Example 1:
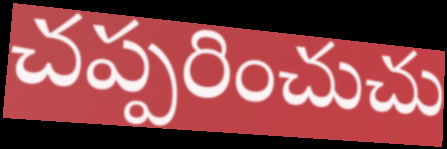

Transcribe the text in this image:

చప్పరించుచు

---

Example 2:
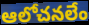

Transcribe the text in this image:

ఆలోచనలేం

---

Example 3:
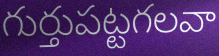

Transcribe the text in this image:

గుర్తుపట్టగలవా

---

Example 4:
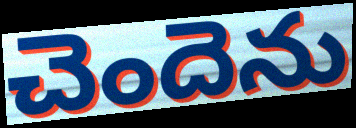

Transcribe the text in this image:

చెందెను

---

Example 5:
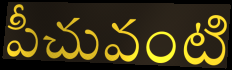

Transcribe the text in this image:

పీచువంటి